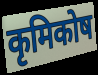
कृमिकोष